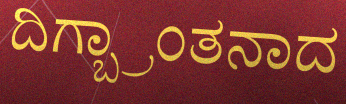
ದಿಗ್ಬ್ರಾಂತನಾದ